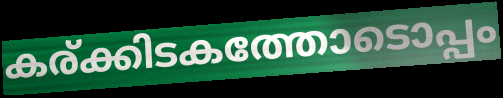
കര്ക്കിടകത്തോടൊപ്പം